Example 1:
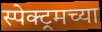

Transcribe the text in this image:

स्पेक्ट्रमच्या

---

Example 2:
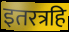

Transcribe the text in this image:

इतरत्रहि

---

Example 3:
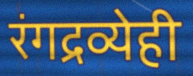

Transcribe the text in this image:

रंगद्रव्येही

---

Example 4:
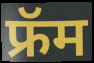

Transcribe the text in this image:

फ्रॅम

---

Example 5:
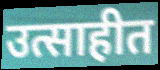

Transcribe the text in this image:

उत्साहीत